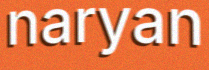
naryan